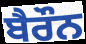
ਬੈਰੌਨ